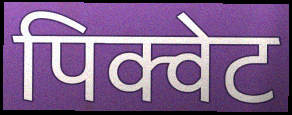
पिक्वेट